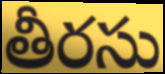
తీరసు